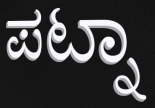
ಪಟ್ನಾ